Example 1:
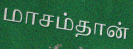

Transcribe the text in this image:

மாசம்தான்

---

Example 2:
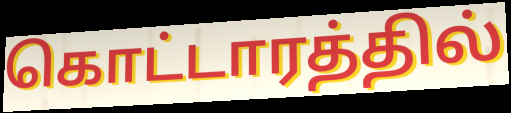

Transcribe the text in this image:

கொட்டாரத்தில்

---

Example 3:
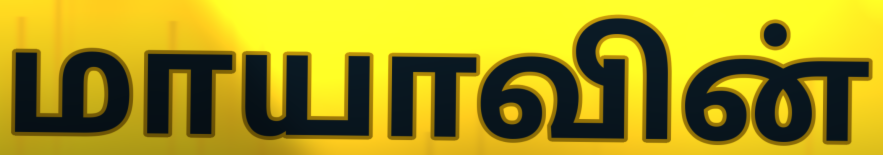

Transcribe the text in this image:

மாயாவின்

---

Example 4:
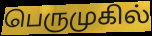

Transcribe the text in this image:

பெருமுகில்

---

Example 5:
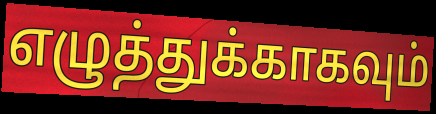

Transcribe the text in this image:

எழுத்துக்காகவும்